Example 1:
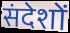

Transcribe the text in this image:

संदेशों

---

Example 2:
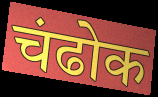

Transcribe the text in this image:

चंढोक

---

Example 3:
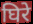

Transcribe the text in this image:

घिरे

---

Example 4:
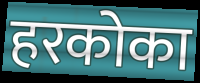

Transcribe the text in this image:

हरकोका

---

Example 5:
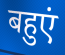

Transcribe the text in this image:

बहुएं